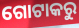
ଗୋଟାକରୁ